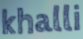
khalli